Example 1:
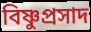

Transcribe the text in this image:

বিষ্ণুপ্ৰসাদ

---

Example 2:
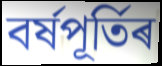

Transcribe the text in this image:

বৰ্ষপূৰ্তিৰ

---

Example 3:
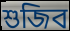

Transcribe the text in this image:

শুজিব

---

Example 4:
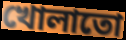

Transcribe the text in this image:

খোলাতো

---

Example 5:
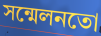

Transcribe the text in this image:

সন্মেলনতো